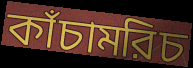
কাঁচামরিচ